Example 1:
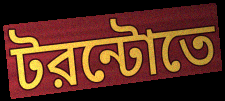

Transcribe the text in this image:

টরন্টোতে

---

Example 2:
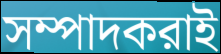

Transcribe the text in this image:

সম্পাদকরাই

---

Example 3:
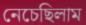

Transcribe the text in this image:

নেচেছিলাম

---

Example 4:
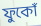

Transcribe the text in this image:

ফুকোঁ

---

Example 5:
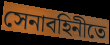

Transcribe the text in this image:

সেনাবহিনীতে